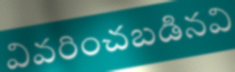
వివరించబడినవి